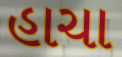
હાચા